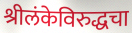
श्रीलंकेविरुद्धचा